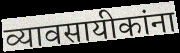
व्यावसायीकांना